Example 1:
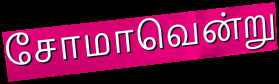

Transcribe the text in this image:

சோமாவென்று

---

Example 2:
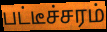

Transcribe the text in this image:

பட்டீச்சரம்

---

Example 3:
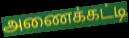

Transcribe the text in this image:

அணைக்கட்டி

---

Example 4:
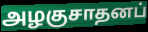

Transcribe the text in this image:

அழகுசாதனப்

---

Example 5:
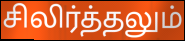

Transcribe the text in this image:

சிலிர்த்தலும்